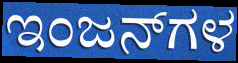
ಇಂಜನ್‌ಗಳ